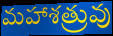
మహాశత్రువు